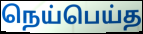
நெய்பெய்த